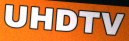
UHDTV